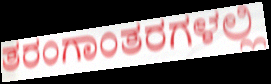
ತರಂಗಾಂತರಗಳಲ್ಲಿ